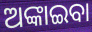
ଅଙ୍କାଇବା